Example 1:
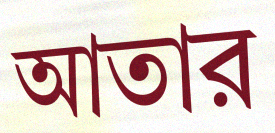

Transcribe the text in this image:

আতার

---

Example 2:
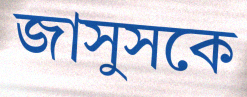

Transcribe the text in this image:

জাসুসকে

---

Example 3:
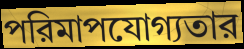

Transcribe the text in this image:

পরিমাপযোগ্যতার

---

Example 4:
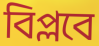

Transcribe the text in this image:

বিপ্লবে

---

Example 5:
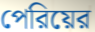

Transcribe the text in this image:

পেরিয়ের